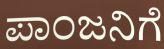
ಪಾಂಜನಿಗೆ